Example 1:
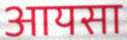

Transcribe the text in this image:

आयसा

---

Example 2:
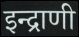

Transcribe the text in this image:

इन्द्राणी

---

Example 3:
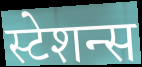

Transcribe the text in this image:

स्टेशन्स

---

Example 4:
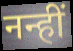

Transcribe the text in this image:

नन्‍हीं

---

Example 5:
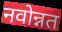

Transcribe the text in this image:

नवोन्नत